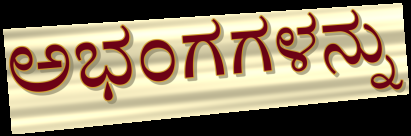
ಅಭಂಗಗಳನ್ನು